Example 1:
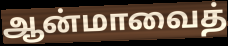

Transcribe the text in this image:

ஆன்மாவைத்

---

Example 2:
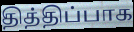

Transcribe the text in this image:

தித்திப்பாக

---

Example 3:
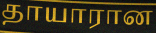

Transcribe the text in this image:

தாயாரான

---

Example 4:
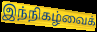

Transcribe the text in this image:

இந்நிகழ்வைக்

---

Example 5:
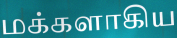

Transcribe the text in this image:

மக்களாகிய